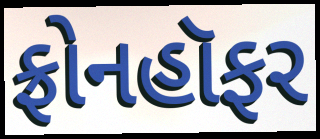
ફ્રોનહૉફર